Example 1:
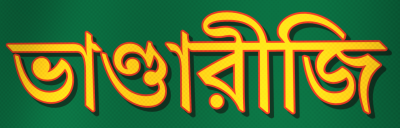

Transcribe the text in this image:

ভাণ্ডারীজি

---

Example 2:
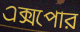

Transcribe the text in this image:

এক্সপোর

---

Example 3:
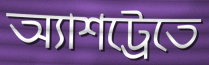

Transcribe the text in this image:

অ্যাশট্রেতে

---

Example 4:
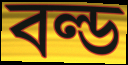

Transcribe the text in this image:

বল্ড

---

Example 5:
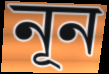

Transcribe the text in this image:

নূন